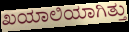
ಖಯಾಲಿಯಾಗಿತ್ತು